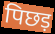
पिछड़